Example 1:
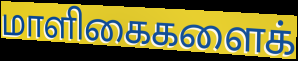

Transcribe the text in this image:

மாளிகைகளைக்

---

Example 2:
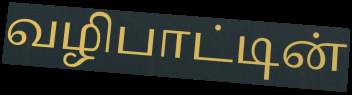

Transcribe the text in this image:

வழிபாட்டின்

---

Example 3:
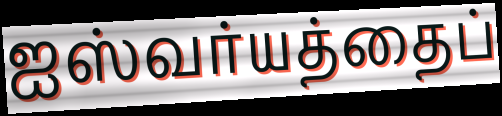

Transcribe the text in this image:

ஐஸ்வர்யத்தைப்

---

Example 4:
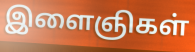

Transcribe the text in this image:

இளைஞிகள்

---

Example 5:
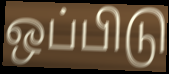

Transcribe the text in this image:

ஒப்பிடு